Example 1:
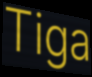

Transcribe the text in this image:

Tiga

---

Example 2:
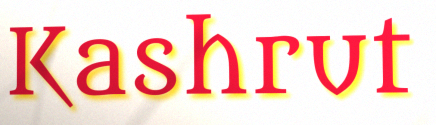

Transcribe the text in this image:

Kashrut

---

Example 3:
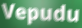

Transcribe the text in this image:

Vepudu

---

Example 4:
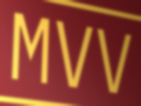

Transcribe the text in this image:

MVV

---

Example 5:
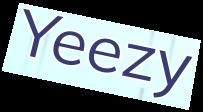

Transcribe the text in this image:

Yeezy